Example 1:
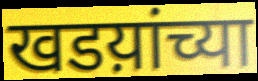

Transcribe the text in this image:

खडय़ांच्या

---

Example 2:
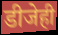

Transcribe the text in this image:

डीजेही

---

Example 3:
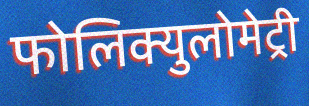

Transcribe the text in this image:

फोलिक्युलोमेट्री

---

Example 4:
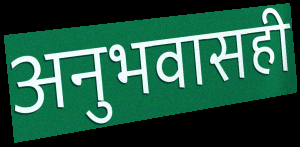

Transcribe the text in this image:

अनुभवासही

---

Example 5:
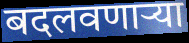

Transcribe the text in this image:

बदलवणार्‍या